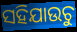
ସହିଯାଉଚୁ